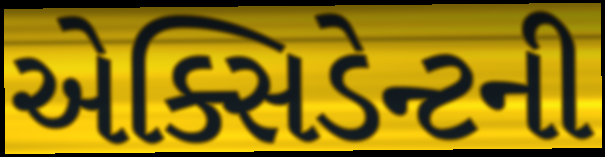
એક્સિડેન્ટની